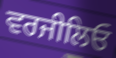
ਵਰਜੀਲਿਓ